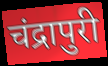
चंद्रापुरी